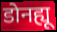
डोनह्यू